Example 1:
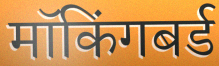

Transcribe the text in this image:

मॉकिंगबर्ड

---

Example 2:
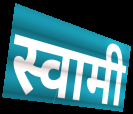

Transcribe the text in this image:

स्वामी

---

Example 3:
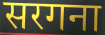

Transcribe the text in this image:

सरगना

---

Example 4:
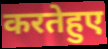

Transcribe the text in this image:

करतेहुए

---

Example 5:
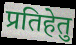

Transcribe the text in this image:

प्रतिहेतु